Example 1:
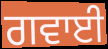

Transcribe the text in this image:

ਗਵਾਈ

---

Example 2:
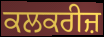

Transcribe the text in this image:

ਕਲਕਰੀਜ਼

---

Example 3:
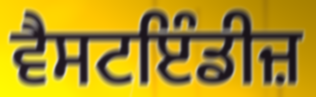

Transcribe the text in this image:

ਵੈਸਟਇੰਡੀਜ਼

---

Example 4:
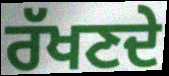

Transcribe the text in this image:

ਰੱਖਣਦੇ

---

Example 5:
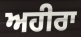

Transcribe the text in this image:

ਅਹੀਰਾ